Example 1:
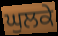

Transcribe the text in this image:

ਘੁਲਕੇ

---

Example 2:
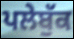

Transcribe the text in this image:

ਪਲੇਬੁੱਕ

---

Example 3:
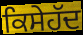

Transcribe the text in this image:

ਕਿਸੇਹੱਦ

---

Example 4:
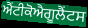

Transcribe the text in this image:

ਐਂਟੀਕੋਐਗੂਲੈਂਟਸ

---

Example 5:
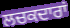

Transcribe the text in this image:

ਲਚਕਦਾਰਾਂ